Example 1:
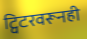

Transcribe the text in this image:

ट्विटरवरूनही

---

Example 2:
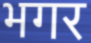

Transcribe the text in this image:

भगर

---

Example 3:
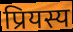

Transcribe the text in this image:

प्रियस्य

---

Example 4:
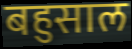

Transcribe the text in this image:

बहुसाल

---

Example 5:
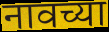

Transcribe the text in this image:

नावच्या